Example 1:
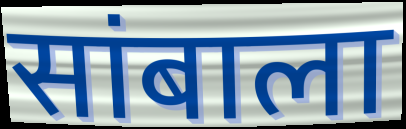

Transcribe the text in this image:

सांबाला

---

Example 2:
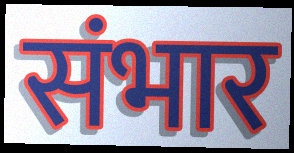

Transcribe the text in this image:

संभार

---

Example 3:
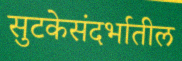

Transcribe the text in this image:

सुटकेसंदर्भातील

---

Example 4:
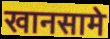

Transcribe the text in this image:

खानसामे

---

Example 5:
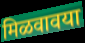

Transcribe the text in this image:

मिळवावया